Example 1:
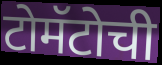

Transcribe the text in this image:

टोमॅटोची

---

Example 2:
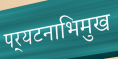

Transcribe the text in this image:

पर्यटनाभिमुख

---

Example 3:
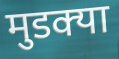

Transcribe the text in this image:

मुडक्या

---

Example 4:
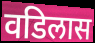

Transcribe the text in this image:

वडिलास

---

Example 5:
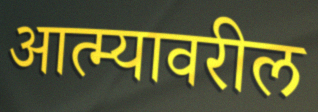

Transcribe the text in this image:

आत्म्यावरील